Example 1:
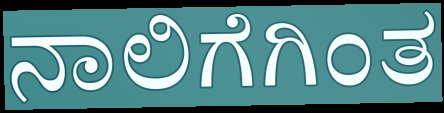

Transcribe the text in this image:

ನಾಲಿಗೆಗಿಂತ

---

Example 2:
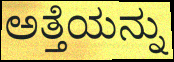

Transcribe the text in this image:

ಅತ್ತೆಯನ್ನು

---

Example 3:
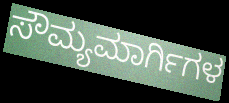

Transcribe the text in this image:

ಸೌಮ್ಯಮಾರ್ಗಿಗಳ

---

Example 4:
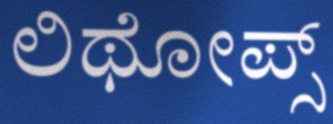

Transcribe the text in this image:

ಲಿಥೋಪ್ಸ್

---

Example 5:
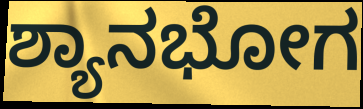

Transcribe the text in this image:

ಶ್ಯಾನಭೋಗ